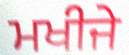
ਮਖੀਜੇ